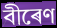
বীৰেণ